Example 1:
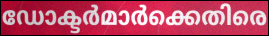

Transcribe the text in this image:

ഡോക്ടർമാർക്കെതിരെ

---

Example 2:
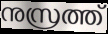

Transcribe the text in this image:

നുസ്രത്ത്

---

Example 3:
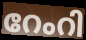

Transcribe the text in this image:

റേംറി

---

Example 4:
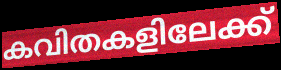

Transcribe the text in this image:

കവിതകളിലേക്ക്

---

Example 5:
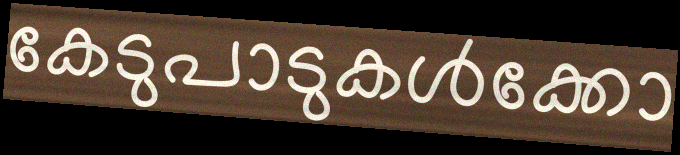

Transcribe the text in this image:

കേടുപാടുകൾക്കോ